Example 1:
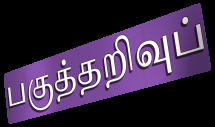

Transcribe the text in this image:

பகுத்தறிவுப்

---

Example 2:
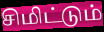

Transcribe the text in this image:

சிமிட்டும்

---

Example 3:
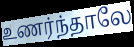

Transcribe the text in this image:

உணர்ந்தாலே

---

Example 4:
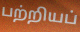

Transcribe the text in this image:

பற்றியப்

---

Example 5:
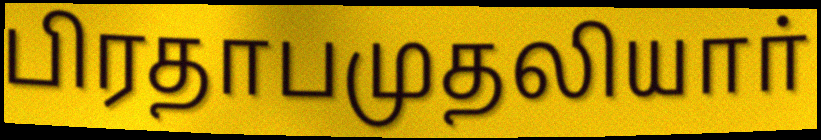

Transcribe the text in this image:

பிரதாபமுதலியார்